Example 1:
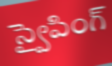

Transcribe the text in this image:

స్వైపింగ్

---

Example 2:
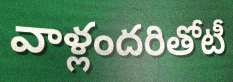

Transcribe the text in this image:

వాళ్లందరితోటీ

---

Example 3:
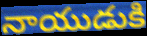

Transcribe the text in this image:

నాయుడుకి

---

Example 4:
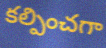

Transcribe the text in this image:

కల్పించగా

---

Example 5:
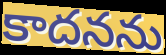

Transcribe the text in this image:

కాదనను